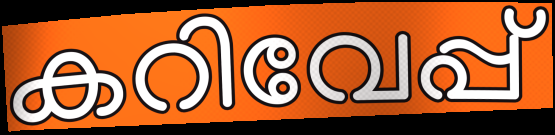
കറിവേപ്പ്